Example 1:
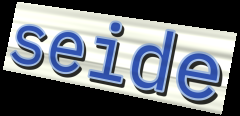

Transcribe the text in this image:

seide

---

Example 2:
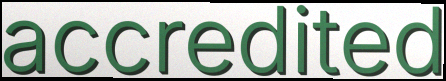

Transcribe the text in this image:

accredited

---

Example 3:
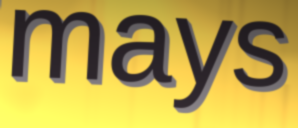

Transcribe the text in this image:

mays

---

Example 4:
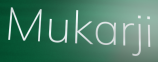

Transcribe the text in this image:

Mukarji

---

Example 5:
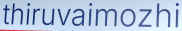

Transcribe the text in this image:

thiruvaimozhi